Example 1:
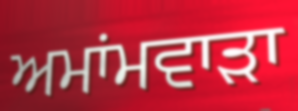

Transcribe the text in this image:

ਅਮਾਂਮਵਾੜਾ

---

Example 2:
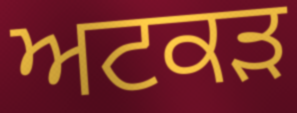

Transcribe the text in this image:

ਅਟਕੜ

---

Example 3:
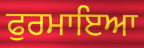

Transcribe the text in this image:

ਫੁਰਮਾਇਆ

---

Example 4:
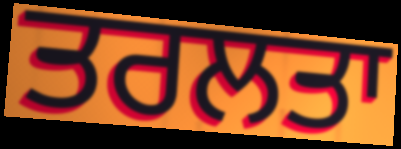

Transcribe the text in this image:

ਤਰਲਤਾ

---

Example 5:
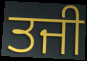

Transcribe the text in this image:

ਤਜੀ